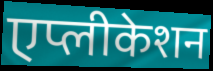
एप्‍लीकेशन